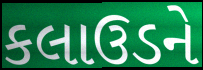
કલાઉડને